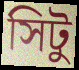
সিটু